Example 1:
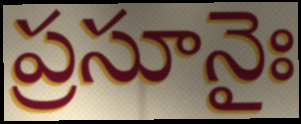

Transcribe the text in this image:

ప్రసూనైః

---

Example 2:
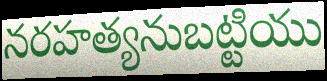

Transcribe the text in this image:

నరహత్యనుబట్టియు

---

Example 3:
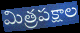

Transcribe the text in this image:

మిత్రపక్షాల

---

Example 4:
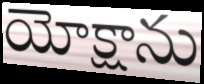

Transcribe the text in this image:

యోక్షాను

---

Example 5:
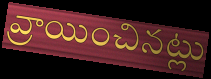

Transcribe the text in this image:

వ్రాయించినట్లు